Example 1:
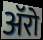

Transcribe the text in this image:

ॲरो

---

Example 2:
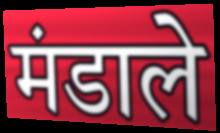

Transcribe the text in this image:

मंडाले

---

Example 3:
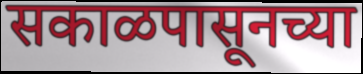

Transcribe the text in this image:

सकाळपासूनच्या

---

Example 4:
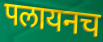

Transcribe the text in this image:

पलायनच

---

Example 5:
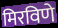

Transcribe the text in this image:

मिरविणे